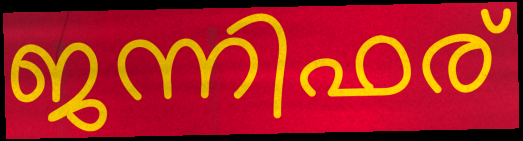
ജന്നിഫര്